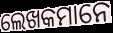
ଲେଖକମାନେ